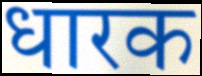
धारक